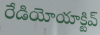
రేడియోయాక్టివ్